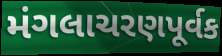
મંગલાચરણપૂર્વક